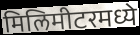
मिलिमीटरमध्ये